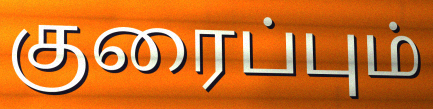
குரைப்பும்